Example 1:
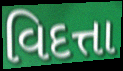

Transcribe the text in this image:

વિદત્તા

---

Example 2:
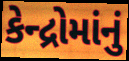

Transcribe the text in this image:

કેન્દ્રોમાંનું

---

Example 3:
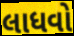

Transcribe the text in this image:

લાધવો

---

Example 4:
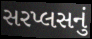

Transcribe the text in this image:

સરપ્લસનું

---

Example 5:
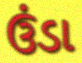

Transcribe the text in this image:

ઉંડા